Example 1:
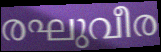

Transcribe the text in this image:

രഘുവീര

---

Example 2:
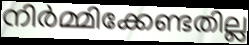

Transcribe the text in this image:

നിർമ്മിക്കേണ്ടതില്ല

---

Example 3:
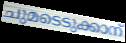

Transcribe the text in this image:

ചുമടെടുക്കാന്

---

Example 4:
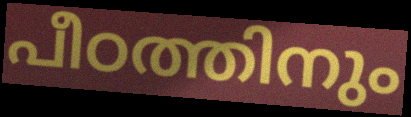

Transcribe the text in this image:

പീഠത്തിനും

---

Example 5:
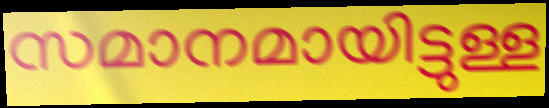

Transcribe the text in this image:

സമാനമായിട്ടുള്ള